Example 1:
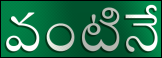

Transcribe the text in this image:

వంటినే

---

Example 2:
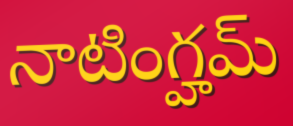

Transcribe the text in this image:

నాటింగ్హమ్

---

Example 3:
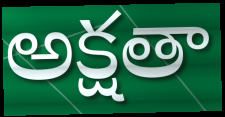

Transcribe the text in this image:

అక్షతా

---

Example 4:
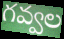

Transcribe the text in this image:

గవ్వల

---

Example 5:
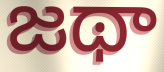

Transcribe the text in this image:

జథా